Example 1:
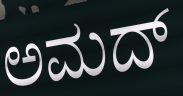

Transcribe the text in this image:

ಅಮದ್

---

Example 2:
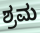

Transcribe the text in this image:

ಶ್ರಮ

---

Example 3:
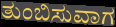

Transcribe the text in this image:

ತುಂಬಿಸುವಾಗ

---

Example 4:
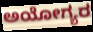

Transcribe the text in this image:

ಅಯೋಗ್ಯರ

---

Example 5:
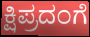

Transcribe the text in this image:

ಕ್ಷಿಪ್ರದಂಗೆ